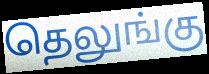
தெலுங்கு